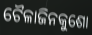
ଚୈଳାଜିନକୁଶୋ